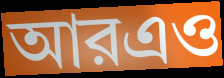
আরএও